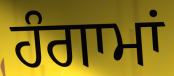
ਹੰਗਾਮਾਂ